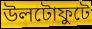
উলটোফুটে